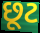
છૂટ